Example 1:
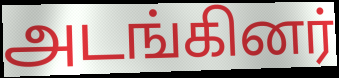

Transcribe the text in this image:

அடங்கினர்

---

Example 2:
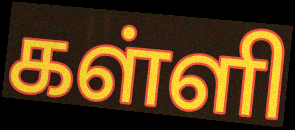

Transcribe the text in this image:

கள்ளி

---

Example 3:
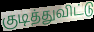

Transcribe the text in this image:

குடித்துவிட்டு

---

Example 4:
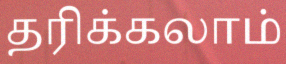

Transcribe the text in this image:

தரிக்கலாம்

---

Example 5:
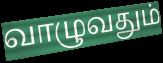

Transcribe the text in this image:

வாழுவதும்